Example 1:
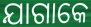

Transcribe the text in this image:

ଯାଗାକେ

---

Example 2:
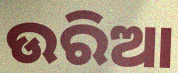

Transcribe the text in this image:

ଉରିଆ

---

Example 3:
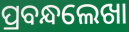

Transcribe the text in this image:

ପ୍ରବନ୍ଧଲେଖା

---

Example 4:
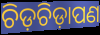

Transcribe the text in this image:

ଚିଡ଼ଚିଡ଼ାପଣ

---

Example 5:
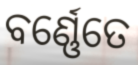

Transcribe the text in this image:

ବର୍ଣ୍ଣେତେ